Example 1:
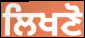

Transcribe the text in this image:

ਲਿਖਣੋ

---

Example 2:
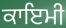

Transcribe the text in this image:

ਕਾਇਮੀ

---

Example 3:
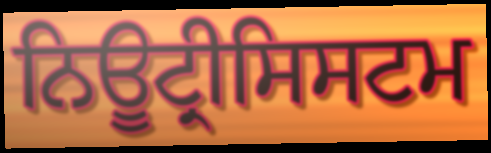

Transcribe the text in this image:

ਨਿਊਟ੍ਰੀਸਿਸਟਮ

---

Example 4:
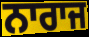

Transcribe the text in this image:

ਨਾਰਾਜ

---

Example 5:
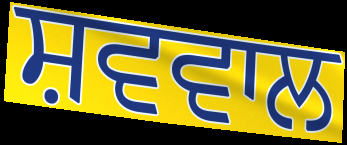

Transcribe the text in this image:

ਸ਼ਵਵਾਲ